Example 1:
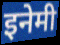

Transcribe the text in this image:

इनेमी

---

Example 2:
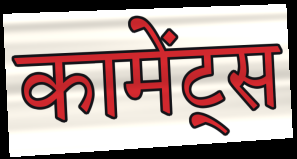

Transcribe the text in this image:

कामेंट्स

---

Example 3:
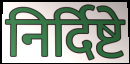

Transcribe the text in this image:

निर्दिष्टे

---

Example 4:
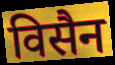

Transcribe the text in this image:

विसैन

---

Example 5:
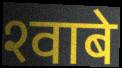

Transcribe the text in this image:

श्वाबे